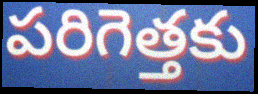
పరిగెత్తకు